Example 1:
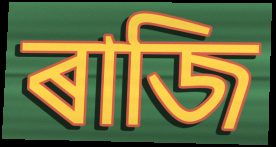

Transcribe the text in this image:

ৰাজি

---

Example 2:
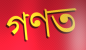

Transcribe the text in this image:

গণত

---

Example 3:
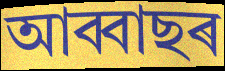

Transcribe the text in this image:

আব্বাছৰ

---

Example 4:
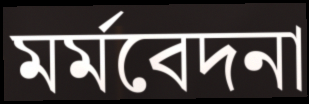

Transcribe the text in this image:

মৰ্মবেদনা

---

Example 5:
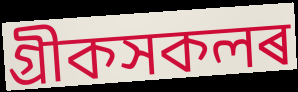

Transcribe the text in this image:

গ্ৰীকসকলৰ